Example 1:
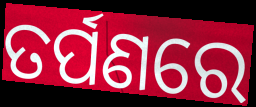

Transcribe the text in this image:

ତର୍ପଣରେ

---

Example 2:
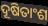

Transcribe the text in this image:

ଦୂଷିତାଂଶ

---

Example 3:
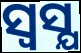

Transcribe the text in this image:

ସ୍ଵସ୍ଯ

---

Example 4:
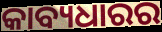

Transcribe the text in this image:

କାବ୍ୟଧାରର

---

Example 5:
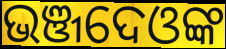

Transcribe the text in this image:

ଭଞ୍ଜଦେଓଙ୍କ